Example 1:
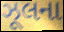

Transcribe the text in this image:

ઝૂલના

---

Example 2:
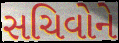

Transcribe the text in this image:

સચિવોને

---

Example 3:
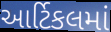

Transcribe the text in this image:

આર્ટિકલમાં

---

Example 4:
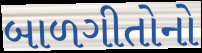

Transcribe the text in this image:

બાળગીતોનો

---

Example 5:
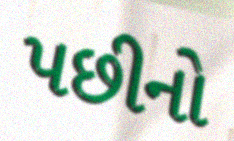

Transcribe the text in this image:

પછીનો